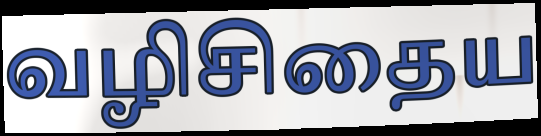
வழிசிதைய